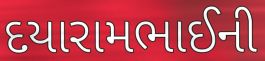
દયારામભાઈની